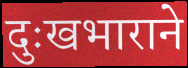
दुःखभाराने